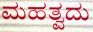
ಮಹತ್ವದು